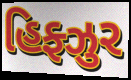
હિફ્ઝુર